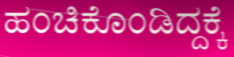
ಹಂಚಿಕೊಂಡಿದ್ದಕ್ಕೆ